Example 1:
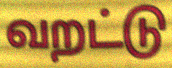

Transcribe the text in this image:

வறட்டு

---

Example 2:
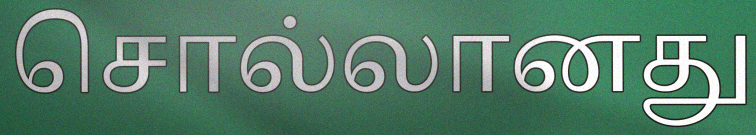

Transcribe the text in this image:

சொல்லானது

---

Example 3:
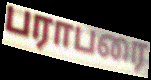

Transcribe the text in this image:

பராபரை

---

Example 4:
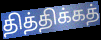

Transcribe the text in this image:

தித்திக்கத்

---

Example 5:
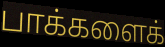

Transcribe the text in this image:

பாக்களைக்